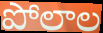
పోలాల